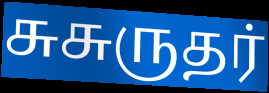
சுசுருதர்